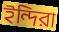
ইন্দিরা